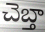
చెబ్తా